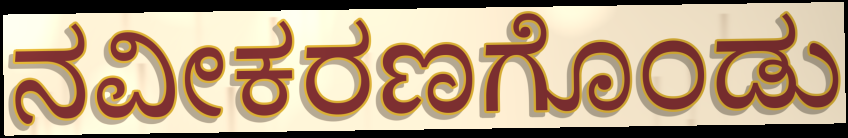
ನವೀಕರಣಗೊಂಡು